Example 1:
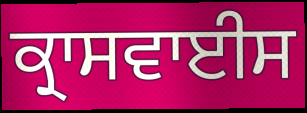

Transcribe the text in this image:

ਕ੍ਰਾਸਵਾਈਸ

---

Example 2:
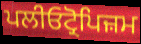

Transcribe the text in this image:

ਪਲੀਓਟ੍ਰੋਪਿਜ਼ਮ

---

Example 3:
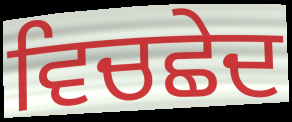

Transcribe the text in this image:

ਵਿਚਛੇਦ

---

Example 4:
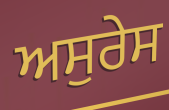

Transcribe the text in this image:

ਅਸੁਰੇਸ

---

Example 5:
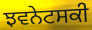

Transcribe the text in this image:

ਝਵਨੇਟਸਕੀ